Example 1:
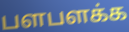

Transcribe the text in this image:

பளபளக்க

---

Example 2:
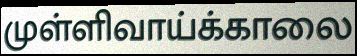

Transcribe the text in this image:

முள்ளிவாய்க்காலை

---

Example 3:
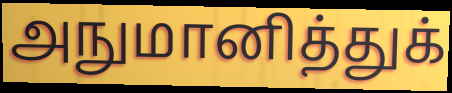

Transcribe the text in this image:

அநுமானித்துக்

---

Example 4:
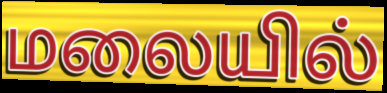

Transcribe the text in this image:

மலையில்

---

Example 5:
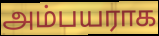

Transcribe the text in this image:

அம்பயராக